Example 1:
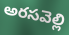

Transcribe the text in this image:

అరసవెల్లి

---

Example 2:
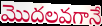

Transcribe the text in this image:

మొదలవగానే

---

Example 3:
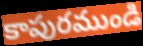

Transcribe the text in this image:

కాపురముండి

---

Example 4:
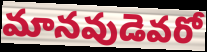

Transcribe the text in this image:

మానవుడెవరో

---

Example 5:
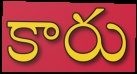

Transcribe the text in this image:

కారు